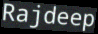
Rajdeep